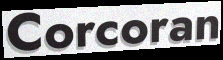
Corcoran